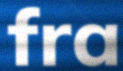
fra